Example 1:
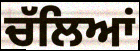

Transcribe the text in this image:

ਚੱਲਿਆਂ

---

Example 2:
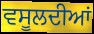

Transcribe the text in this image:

ਵਸੂਲਦੀਆਂ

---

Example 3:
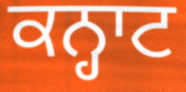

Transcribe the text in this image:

ਕਨ੍ਹਾਟ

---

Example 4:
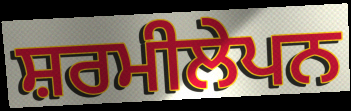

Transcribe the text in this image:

ਸ਼ਰਮੀਲੇਪਨ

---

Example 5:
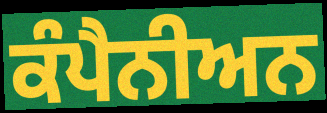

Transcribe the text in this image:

ਕੰਪੈਨੀਅਨ